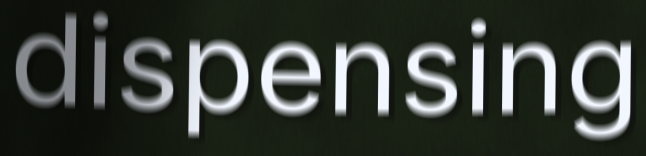
dispensing